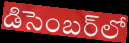
డిసెంబర్‌లో